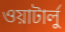
ওয়াটার্লু